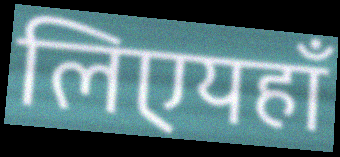
लिएयहाँ